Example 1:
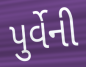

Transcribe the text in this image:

પુર્વેની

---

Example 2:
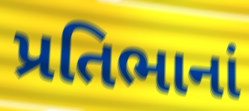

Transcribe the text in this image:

પ્રતિભાનાં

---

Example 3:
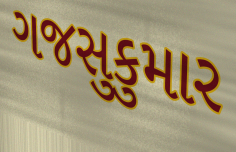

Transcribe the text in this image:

ગજસુકુમાર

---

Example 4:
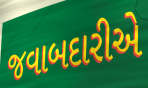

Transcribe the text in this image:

જવાબદારીએ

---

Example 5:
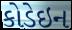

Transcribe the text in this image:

કોડેઇન